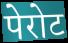
पेरोट